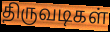
திருவடிகள்